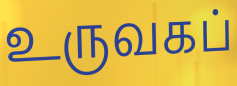
உருவகப்